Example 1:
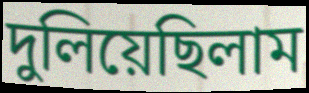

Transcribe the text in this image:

দুলিয়েছিলাম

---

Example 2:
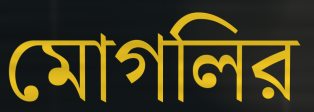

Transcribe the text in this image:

মোগলির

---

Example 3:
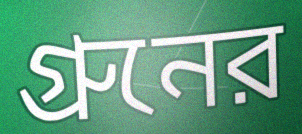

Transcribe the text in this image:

গ্রুনের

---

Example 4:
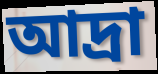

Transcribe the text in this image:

আদ্রা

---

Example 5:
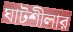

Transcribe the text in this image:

ঘাটশীলার